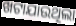
ଖଟାଯାଉଥିଲା